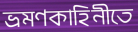
ভ্রমণকাহিনীতে